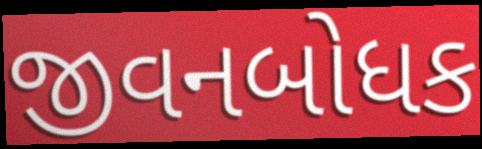
જીવનબોધક